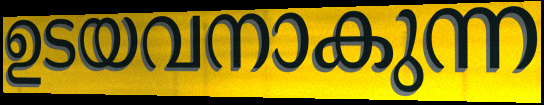
ഉടയവനാകുന്ന